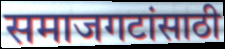
समाजगटांसाठी